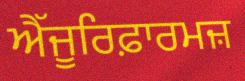
ਐੱਜੂਰਿਫ਼ਾਰਮਜ਼